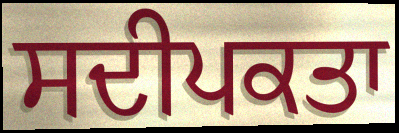
ਸਦੀਪਕਤਾ